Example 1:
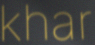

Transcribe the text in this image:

khar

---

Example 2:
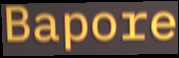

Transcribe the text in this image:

Bapore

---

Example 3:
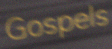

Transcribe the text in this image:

Gospels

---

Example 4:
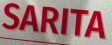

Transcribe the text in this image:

SARITA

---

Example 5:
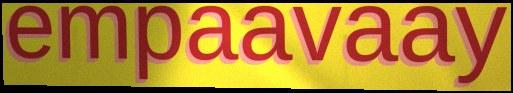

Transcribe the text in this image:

empaavaay